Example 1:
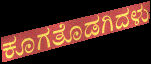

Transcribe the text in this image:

ಕೂಗತೊಡಗಿದಳು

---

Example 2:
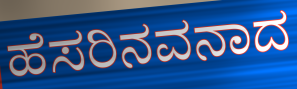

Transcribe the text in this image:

ಹೆಸರಿನವನಾದ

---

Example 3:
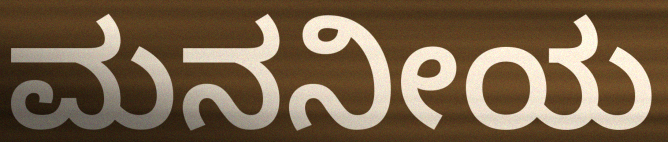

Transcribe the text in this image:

ಮನನೀಯ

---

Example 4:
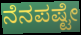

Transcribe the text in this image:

ನೆನಪಷ್ಟೇ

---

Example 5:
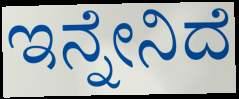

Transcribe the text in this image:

ಇನ್ನೇನಿದೆ